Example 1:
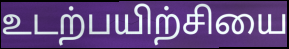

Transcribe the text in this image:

உடற்பயிற்சியை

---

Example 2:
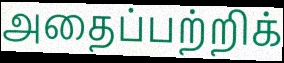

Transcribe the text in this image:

அதைப்பற்றிக்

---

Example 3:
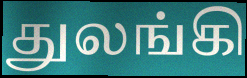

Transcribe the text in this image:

துலங்கி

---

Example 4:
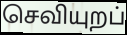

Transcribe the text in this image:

செவியுறப்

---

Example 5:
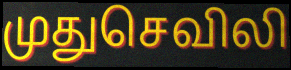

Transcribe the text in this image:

முதுசெவிலி